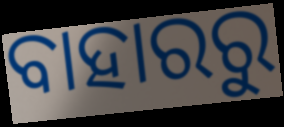
ବାହାରରୁ